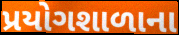
પ્રયોગશાળાના